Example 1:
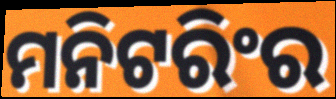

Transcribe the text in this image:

ମନିଟରିଂର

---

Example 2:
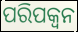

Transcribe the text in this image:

ପରିପକ୍ବନ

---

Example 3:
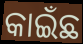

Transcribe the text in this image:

କାଇଁଛ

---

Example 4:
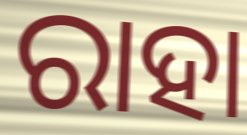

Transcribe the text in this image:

ରାହା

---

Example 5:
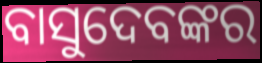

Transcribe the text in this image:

ବାସୁଦେବଙ୍କର